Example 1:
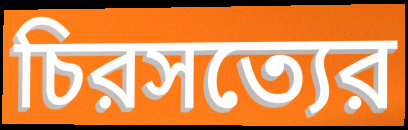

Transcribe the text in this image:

চিরসত্যের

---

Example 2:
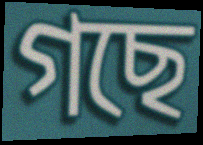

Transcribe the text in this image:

গছে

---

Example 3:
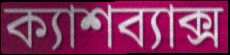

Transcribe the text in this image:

ক্যাশব্যাক্স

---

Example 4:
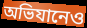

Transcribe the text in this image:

অভিযানেও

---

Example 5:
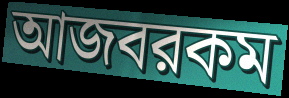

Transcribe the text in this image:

আজবরকম